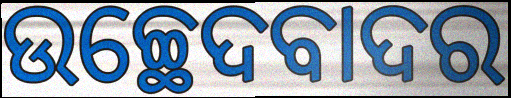
ଉଚ୍ଛେଦବାଦର